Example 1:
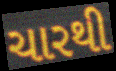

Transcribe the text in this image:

ચારથી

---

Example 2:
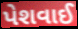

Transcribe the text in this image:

પેશવાઈ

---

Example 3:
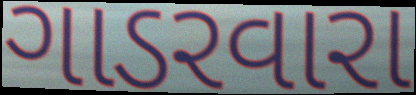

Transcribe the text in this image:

ગાડરવારા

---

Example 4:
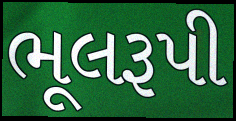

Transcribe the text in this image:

ભૂલરૂપી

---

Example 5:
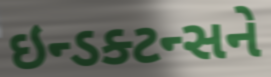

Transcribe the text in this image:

ઇન્ડક્ટન્સને